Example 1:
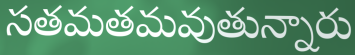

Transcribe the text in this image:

సతమతమవుతున్నారు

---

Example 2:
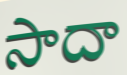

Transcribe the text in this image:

సాదా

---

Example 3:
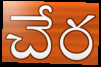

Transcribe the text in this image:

చేర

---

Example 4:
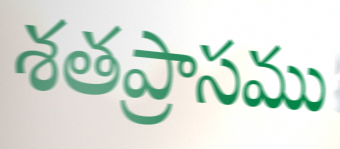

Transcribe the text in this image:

శతప్రాసము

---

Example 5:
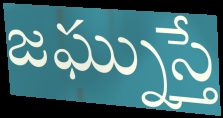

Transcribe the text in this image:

జఘ్నుస్తే